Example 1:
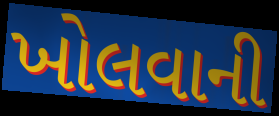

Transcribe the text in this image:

ખોલવાની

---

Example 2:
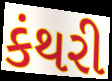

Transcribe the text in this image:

કંથરી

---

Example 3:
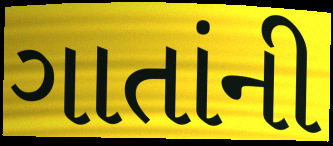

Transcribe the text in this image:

ગાતાંની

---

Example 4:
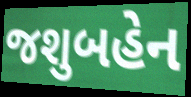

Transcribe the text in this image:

જશુબહેન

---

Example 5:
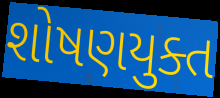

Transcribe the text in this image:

શોષણયુક્ત